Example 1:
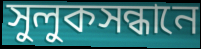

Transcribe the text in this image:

সুলুকসন্ধানে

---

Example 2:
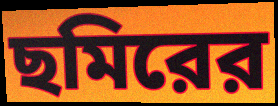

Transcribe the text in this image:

ছমিরের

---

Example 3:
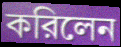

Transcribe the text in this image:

করিলেন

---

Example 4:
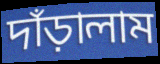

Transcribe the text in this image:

দাঁড়ালাম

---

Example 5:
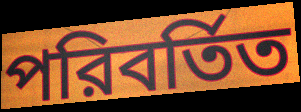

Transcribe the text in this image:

পরিবর্তিত